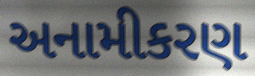
અનામીકરણ